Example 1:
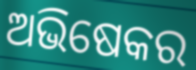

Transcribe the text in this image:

ଅଭିଷେକର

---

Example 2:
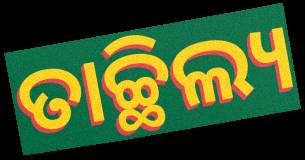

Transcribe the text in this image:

ତାଚ୍ଛିଲ୍ୟ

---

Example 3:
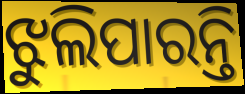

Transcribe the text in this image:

ଝୁଲିପାରନ୍ତି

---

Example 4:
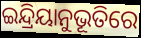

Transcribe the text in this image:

ଇନ୍ଦ୍ରିୟାନୁଭୂତିରେ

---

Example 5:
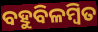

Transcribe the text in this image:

ବହୁବିଳମ୍ବିତ